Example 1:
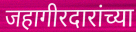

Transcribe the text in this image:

जहागीरदारांच्या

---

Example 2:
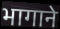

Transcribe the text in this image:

भागाने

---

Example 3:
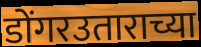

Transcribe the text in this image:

डोंगरउताराच्या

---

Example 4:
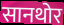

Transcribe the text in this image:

सानथोर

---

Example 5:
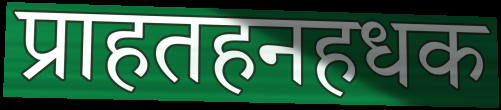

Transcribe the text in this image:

प्राहतहनहधक